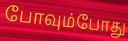
போவும்போது